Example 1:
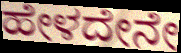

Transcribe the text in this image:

ಹೇಳದೇನೇ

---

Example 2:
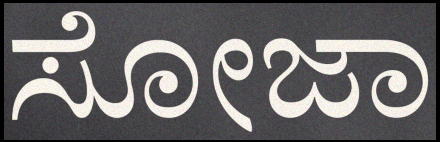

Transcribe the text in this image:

ಸೋಜಾ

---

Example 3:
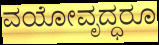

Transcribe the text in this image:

ವಯೋವೃದ್ಧರೂ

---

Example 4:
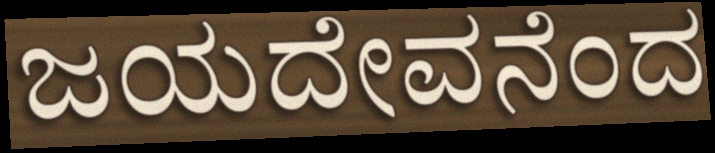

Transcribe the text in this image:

ಜಯದೇವನೆಂದ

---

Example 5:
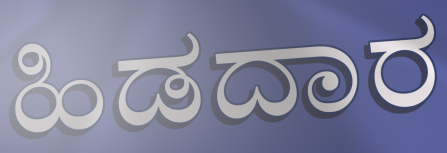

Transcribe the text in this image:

ಹಿಡದಾರ